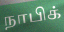
நாபிக்